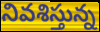
నివశిస్తున్న